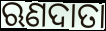
ଋଣଦାତା